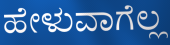
ಹೇಳುವಾಗೆಲ್ಲ